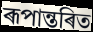
ৰূপান্তৰিত